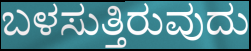
ಬಳಸುತ್ತಿರುವುದು